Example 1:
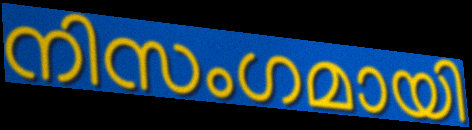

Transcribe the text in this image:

നിസംഗമായി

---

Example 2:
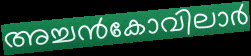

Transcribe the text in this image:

അച്ചൻകോവിലാർ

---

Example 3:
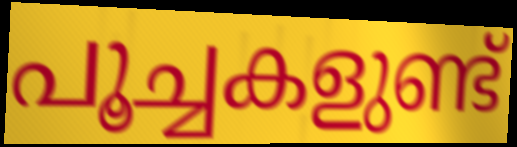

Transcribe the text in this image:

പൂച്ചകളുണ്ട്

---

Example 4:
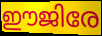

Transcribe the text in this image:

ഈജിരേ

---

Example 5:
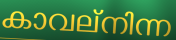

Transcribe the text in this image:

കാവല്നിന്ന